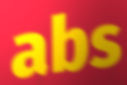
abs